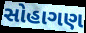
સોહાગણ